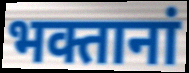
भक्तानां